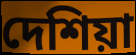
দেশিয়া